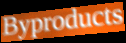
Byproducts